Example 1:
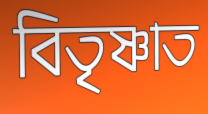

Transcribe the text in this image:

বিতৃষ্ণাত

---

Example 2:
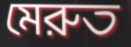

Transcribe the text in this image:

মেৰুত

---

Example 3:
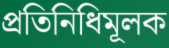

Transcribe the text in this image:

প্ৰতিনিধিমূলক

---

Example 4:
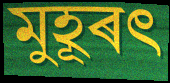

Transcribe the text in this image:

মুহূৰৎ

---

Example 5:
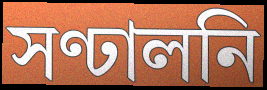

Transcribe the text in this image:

সণ্ঢালনি